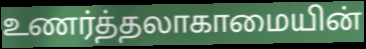
உணர்த்தலாகாமையின்